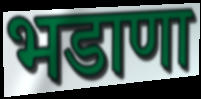
भडाणा